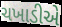
ચખાડીએ